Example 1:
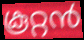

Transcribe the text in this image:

കൂറ്റൻ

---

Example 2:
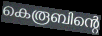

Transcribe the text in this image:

കെരൂബിന്റെ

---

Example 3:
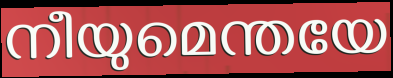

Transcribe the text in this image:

നീയുമെന്തയേ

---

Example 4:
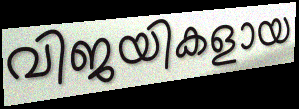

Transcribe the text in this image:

വിജയികളായ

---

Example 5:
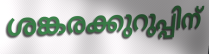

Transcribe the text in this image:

ശങ്കരക്കുറുപ്പിന്